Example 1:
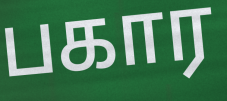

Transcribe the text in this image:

பகார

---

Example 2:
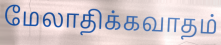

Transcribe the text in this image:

மேலாதிக்கவாதம்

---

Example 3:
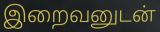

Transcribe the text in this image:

இறைவனுடன்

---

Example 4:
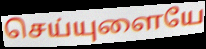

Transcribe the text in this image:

செய்யுளையே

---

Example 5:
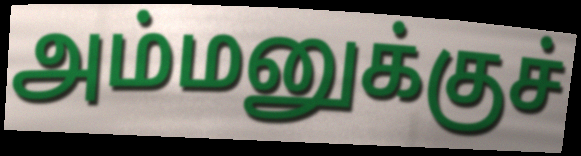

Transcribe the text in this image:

அம்மனுக்குச்